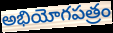
అభియోగపత్రం